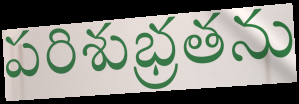
పరిశుభ్రతను